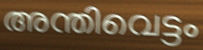
അന്തിവെട്ടം